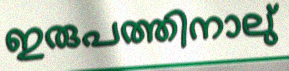
ഇരുപത്തിനാലു്